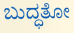
ಬುದ್ಧತೋ